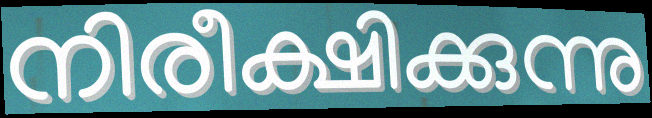
നിരീക്ഷിക്കുന്നു